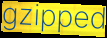
gzipped